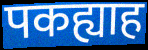
पकह्याह